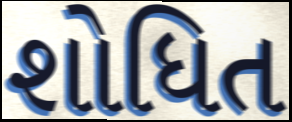
શોધિત